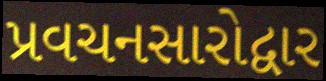
પ્રવચનસારોદ્વાર